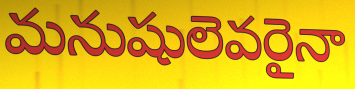
మనుషులెవరైనా